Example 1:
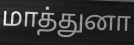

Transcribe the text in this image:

மாத்துனா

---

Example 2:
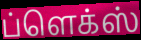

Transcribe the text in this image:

ப்ளெக்ஸ்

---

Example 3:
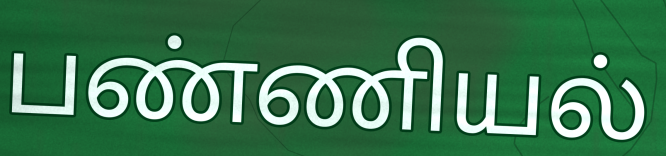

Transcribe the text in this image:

பண்ணியல்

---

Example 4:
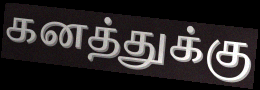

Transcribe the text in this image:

கனத்துக்கு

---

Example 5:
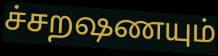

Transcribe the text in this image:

ச்சறஷணயும்